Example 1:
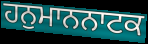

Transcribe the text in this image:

ਹਨੁਮਾਨਨਾਟਕ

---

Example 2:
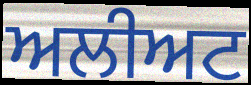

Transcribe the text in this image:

ਅਲੀਅਟ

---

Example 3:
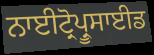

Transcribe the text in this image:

ਨਾਈਟ੍ਰੋਪ੍ਰੂਸਾਈਡ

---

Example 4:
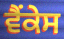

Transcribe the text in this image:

ਵੈਂਕੇਸ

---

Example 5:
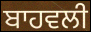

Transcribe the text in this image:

ਬਾਹਵਲੀ